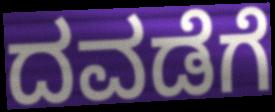
ದವಡೆಗೆ